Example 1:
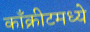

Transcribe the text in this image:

काँक्रीटमध्ये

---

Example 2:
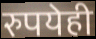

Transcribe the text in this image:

रुपयेही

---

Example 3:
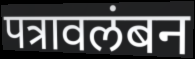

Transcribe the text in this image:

पत्रावलंबन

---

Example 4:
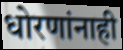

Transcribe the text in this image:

धोरणांनाही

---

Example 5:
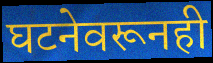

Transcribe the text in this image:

घटनेवरूनही